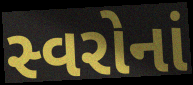
સ્વરોનાં